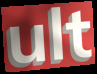
ult